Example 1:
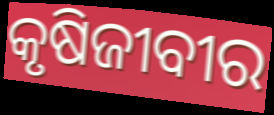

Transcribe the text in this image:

କୃଷିଜୀବୀର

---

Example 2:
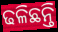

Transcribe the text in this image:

ଢଳିଛନ୍ତି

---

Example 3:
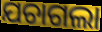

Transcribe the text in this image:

ଯଚାଗଲା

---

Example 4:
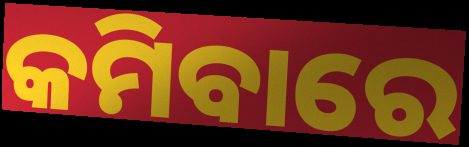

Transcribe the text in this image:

କମିବାରେ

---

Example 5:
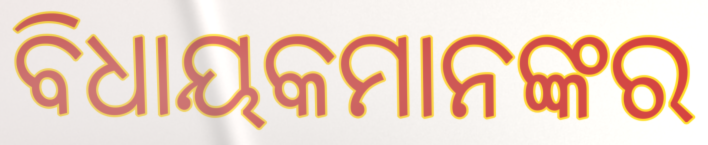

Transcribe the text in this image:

ବିଧାୟକମାନଙ୍କର